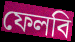
ফেলবি